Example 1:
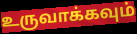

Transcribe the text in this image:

உருவாக்கவும்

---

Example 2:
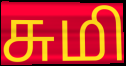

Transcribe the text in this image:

சுமி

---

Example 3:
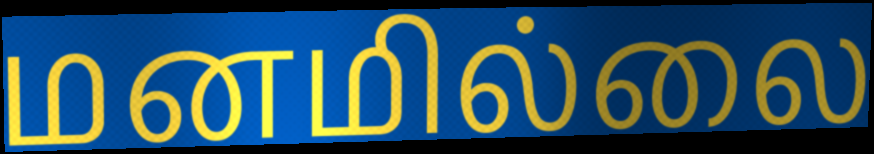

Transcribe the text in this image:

மனமில்லை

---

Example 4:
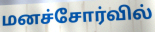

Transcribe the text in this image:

மனச்சோர்வில்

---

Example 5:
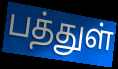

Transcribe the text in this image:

பத்துள்